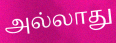
அல்லாது